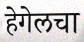
हेगेलचा